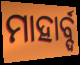
ମାହାର୍ବ୍ଦ